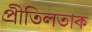
প্ৰীতিলতাক